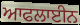
ਆਫਲਾਈਨ